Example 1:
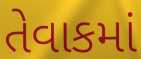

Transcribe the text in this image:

તેવાકમાં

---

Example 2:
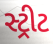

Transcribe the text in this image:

સ્ટ્રીટ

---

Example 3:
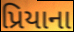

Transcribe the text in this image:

પ્રિયાના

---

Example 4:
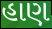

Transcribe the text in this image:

હાણ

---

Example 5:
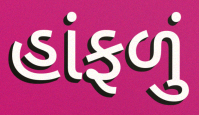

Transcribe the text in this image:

હાંફળું